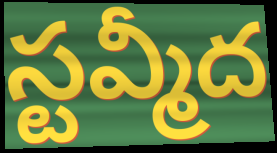
స్టవ్మీద